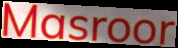
Masroor